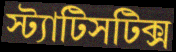
স্ট্যাটিসটিক্স